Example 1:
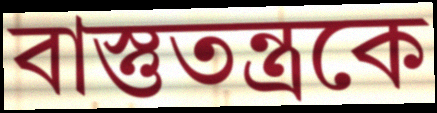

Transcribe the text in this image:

বাস্তুতন্ত্রকে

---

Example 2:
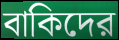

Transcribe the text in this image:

বাকিদের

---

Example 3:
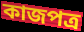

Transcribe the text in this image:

কাজপত্র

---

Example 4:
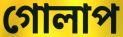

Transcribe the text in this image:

গোলাপ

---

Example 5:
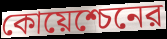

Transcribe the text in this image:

কোয়েশ্চেনের